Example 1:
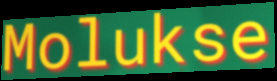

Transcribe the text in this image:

Molukse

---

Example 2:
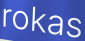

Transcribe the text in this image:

rokas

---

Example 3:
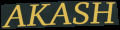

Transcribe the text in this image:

AKASH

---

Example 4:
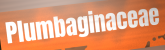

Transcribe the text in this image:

Plumbaginaceae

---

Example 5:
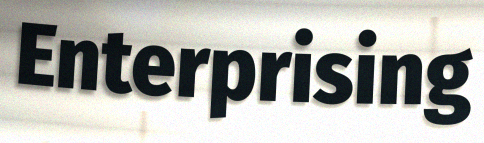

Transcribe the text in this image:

Enterprising